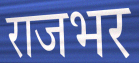
राजभर